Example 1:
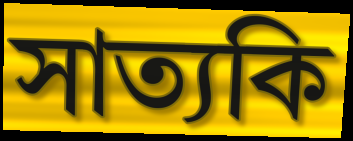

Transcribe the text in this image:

সাত্যকি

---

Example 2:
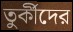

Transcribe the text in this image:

তুর্কীদের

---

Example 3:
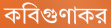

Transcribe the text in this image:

কবিগুণাকর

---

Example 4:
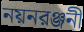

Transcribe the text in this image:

নয়নরঞ্জনী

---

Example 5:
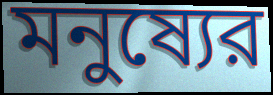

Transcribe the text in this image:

মনুষ্যের